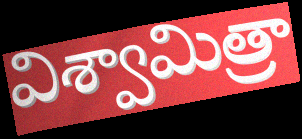
విశ్వామిత్రా